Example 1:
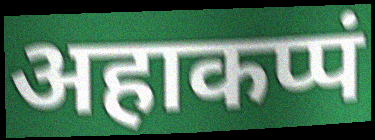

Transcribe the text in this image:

अहाकप्पं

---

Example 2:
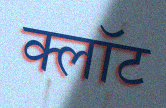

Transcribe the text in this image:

क्‍लॉट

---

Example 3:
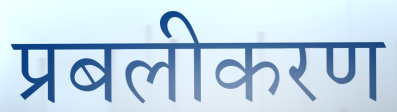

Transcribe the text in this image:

प्रबलीकरण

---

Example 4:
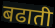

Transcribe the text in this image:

बढाती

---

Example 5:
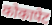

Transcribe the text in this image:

कोकापेट